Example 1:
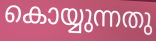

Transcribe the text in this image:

കൊയ്യുന്നതു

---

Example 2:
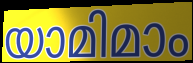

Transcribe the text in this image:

യാമിമാം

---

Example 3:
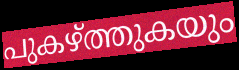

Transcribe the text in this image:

പുകഴ്ത്തുകയും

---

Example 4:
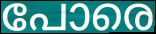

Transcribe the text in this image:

പോരെ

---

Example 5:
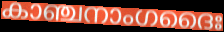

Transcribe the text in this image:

കാഞ്ചനാംഗദൈഃ